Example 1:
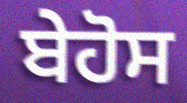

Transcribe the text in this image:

ਬੇਹੋਸ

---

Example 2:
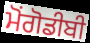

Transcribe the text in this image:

ਮੋਂਗੋਡੀਬੀ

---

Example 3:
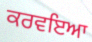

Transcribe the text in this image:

ਕਰਵਇਆ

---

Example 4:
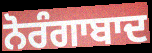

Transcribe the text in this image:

ਨੋਰੰਗਾਬਾਦ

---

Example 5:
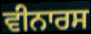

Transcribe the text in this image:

ਵੀਨਾਰਸ